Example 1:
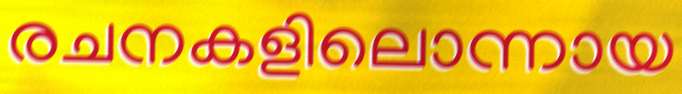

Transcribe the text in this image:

രചനകളിലൊന്നായ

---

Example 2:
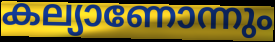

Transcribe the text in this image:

കല്യാണോന്നും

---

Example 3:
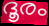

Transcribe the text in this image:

ദൂരം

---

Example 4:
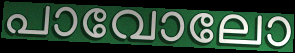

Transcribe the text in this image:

പാവോലോ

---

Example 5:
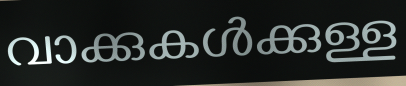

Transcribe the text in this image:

വാക്കുകൾക്കുള്ള